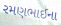
રમણભાઈના